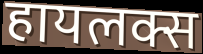
हायलक्स